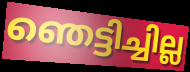
ഞെട്ടിച്ചില്ല